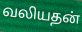
வலியதன்